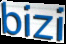
bizi